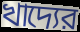
খাদ্যের